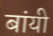
बांयी